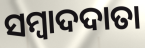
ସମ୍ବାଦଦାତା